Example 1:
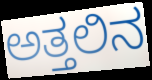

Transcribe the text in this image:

ಅತ್ತಲಿನ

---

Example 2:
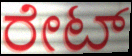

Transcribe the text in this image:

ರೇಟ್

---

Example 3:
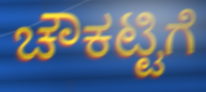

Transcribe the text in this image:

ಚೌಕಟ್ಟಿಗೆ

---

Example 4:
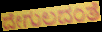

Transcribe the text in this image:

ದೇಗುಲದಂತೆ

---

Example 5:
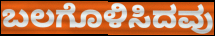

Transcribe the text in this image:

ಬಲಗೊಳಿಸಿದವು